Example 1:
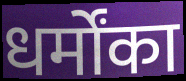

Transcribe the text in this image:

धर्मोंका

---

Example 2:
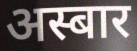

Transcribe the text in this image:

अस्बार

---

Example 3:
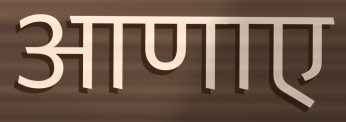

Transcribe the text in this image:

आणाए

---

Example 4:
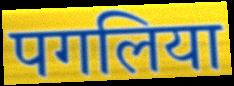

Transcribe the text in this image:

पगलिया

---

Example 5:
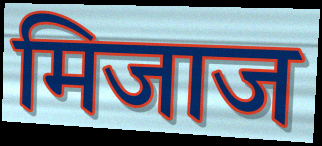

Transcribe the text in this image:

मिजाज